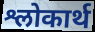
श्लोकार्थ